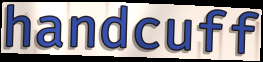
handcuff